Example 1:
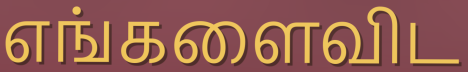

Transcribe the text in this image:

எங்களைவிட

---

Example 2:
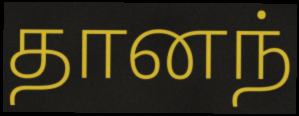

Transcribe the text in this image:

தானந்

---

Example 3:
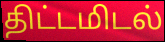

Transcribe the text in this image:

திட்டமிடல்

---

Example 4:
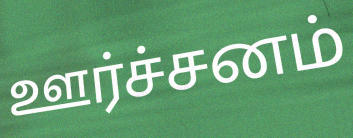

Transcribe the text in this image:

ஊர்ச்சனம்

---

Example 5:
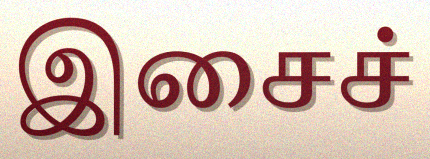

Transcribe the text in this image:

இசைச்